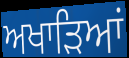
ਅਖਾੜਿਆਂ